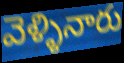
వెళ్ళినారు